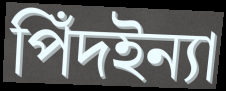
পিঁদইন্যা